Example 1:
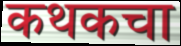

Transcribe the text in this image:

कथकचा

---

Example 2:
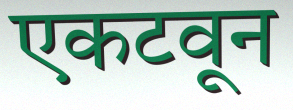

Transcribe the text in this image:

एकटवून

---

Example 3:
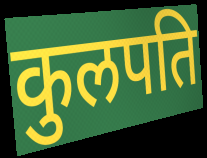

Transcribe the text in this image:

कुलपति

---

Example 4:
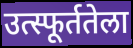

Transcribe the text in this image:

उत्स्फूर्ततेला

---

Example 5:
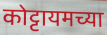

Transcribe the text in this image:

कोट्टायमच्या